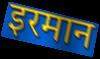
इरमान